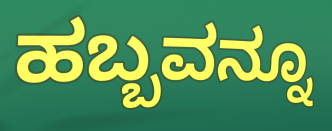
ಹಬ್ಬವನ್ನೂ